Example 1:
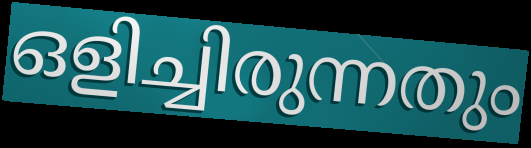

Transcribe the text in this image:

ഒളിച്ചിരുന്നതും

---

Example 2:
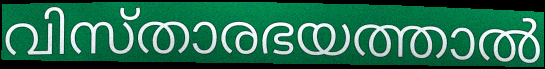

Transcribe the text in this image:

വിസ്താരഭയത്താൽ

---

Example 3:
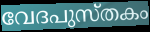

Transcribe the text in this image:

വേദപുസ്തകം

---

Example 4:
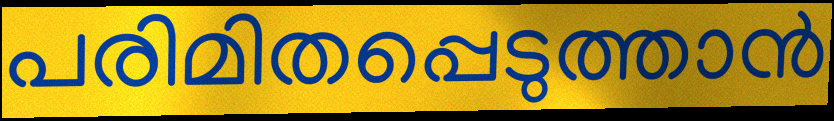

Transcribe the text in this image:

പരിമിതപ്പെടുത്താൻ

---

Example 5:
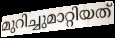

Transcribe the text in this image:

മുറിച്ചുമാറ്റിയത്